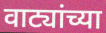
वाट्यांच्या